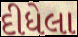
દીધેલા